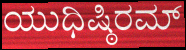
ಯುಧಿಷ್ಠಿರಮ್